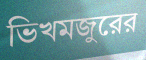
ভিখমজুরের